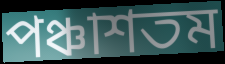
পঞ্চাশতম